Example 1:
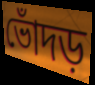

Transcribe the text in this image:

ভোঁদড়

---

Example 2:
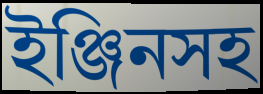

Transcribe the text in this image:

ইঞ্জিনসহ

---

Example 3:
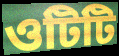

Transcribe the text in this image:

ওটিটি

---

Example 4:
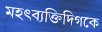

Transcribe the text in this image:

মহৎব্যক্তিদিগকে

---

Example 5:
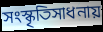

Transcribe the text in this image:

সংস্কৃতিসাধনায়